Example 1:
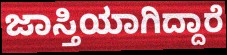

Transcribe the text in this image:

ಜಾಸ್ತಿಯಾಗಿದ್ದಾರೆ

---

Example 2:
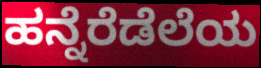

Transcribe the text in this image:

ಹನ್ನೆರೆಡೆಲೆಯ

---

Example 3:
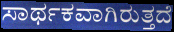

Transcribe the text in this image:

ಸಾರ್ಥಕವಾಗಿರುತ್ತದೆ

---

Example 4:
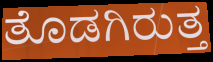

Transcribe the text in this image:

ತೊಡಗಿರುತ್ತ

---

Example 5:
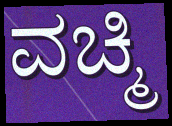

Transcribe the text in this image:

ವಚ್ಮಿ